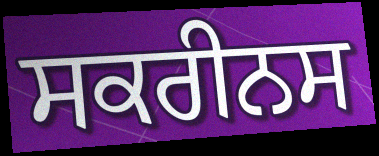
ਸਕਰੀਨਸ